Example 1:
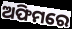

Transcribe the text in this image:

ଅଫିମରେ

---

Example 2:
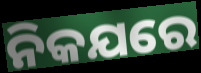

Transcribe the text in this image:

ନିକଯରେ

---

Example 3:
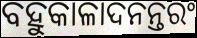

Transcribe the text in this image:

ବହୁକାଳାଦନନ୍ତରଂ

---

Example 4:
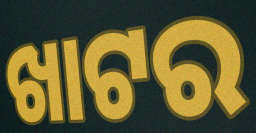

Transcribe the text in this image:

ଖାଟର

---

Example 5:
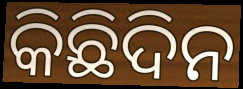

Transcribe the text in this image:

କିଛିଦିନ